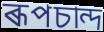
ৰূপচান্দ